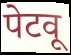
पेटवू